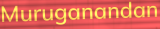
Muruganandan